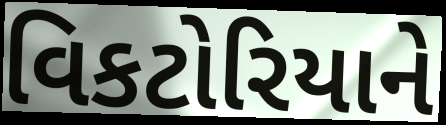
વિકટોરિયાને